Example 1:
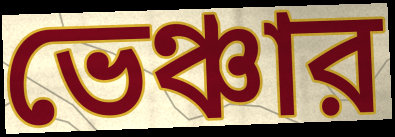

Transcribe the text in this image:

ভেঞ্চার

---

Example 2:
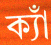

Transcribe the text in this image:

ক্যাঁ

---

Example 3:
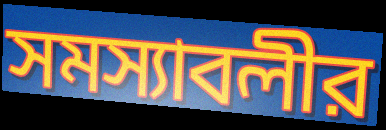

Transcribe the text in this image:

সমস্যাবলীর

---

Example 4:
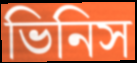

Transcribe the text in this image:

ভিনিস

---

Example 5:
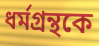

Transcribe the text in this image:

ধর্মগ্রন্থকে